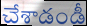
చేశాడండీ